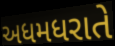
અધમધરાતે